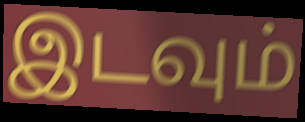
இடவும்